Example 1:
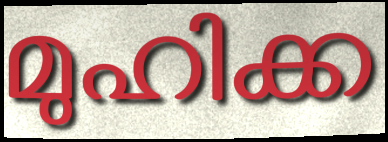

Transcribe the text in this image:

മുഹിക്ക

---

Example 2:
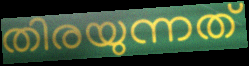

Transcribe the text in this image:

തിരയുന്നത്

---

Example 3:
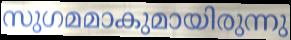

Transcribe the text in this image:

സുഗമമാകുമായിരുന്നു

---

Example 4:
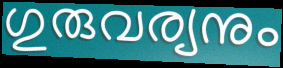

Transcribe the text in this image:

ഗുരുവര്യനും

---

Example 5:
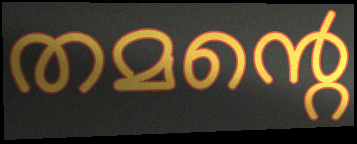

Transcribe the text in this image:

തമന്റെ